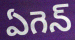
ఏగెన్